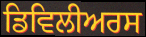
ਡਿਵਿਲੀਅਰਸ